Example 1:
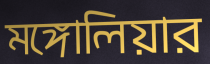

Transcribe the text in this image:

মঙ্গোলিয়ার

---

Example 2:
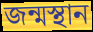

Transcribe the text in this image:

জন্মস্থান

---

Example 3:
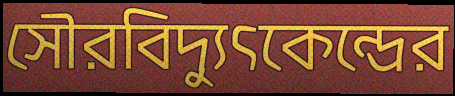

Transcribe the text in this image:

সৌরবিদ্যুৎকেন্দ্রের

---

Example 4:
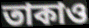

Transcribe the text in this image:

তাকাও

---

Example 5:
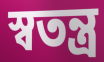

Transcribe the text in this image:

স্বতন্ত্র